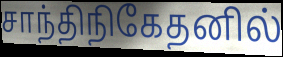
சாந்திநிகேதனில்